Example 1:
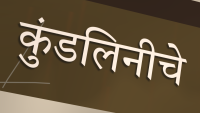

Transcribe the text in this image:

कुंडलिनीचे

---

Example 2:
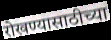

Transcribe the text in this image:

रोखण्यासाठीच्या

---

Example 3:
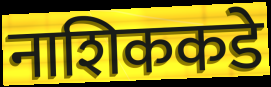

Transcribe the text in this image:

नाशिककडे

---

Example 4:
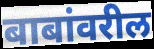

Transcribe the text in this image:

बाबांवरील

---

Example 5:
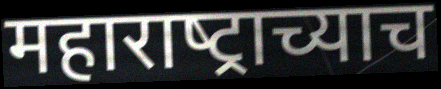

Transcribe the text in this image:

महाराष्ट्राच्याच